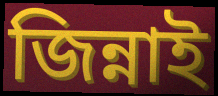
জিন্নাই